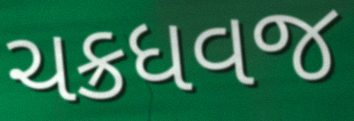
ચક્રધવજ